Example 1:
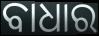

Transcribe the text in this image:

ବାଧାର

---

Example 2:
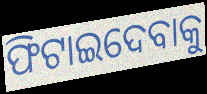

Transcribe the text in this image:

ଫିଟାଇଦେବାକୁ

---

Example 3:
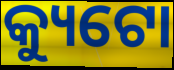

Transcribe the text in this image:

କ୍ୟୁଟୋ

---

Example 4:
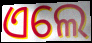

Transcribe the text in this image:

ଏଲେ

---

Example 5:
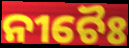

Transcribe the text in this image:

ନୀଚୈଃ